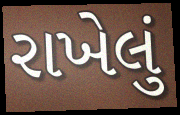
રાખેલું